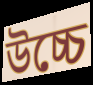
উচ্চে